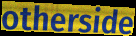
otherside